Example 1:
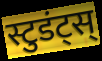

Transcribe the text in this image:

स्टुडंट्स्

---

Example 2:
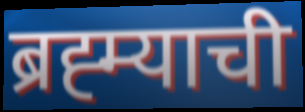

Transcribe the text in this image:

ब्रह्म्याची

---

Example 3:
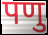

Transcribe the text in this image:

पणु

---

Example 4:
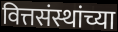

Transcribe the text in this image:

वित्तसंस्थांच्या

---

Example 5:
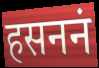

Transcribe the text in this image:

हसननं